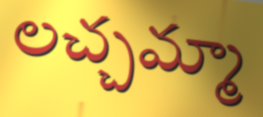
లచ్చమ్మా